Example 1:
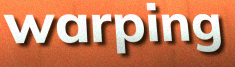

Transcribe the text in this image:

warping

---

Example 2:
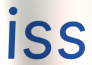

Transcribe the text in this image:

iss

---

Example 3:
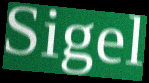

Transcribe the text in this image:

Sigel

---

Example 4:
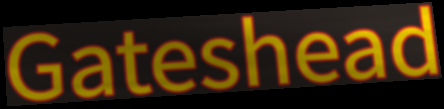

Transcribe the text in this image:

Gateshead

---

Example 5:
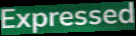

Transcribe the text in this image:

Expressed